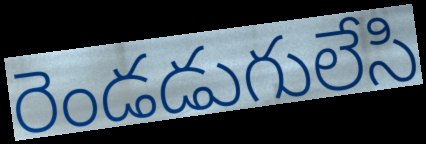
రెండడుగులేసి